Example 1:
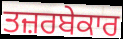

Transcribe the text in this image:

ਤਜ਼ਰਬੇਕਾਰ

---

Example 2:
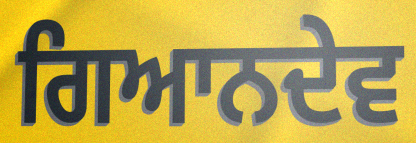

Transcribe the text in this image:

ਗਿਆਨਦੇਵ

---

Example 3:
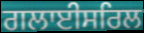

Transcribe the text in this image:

ਗਲਾਈਸਰਿਲ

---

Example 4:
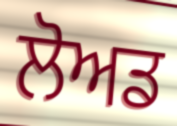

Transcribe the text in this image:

ਲੋਅਡ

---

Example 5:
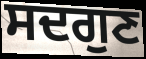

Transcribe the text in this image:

ਸਦਗੁਣ